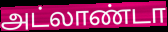
அட்லாண்டா